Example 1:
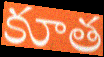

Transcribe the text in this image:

కూత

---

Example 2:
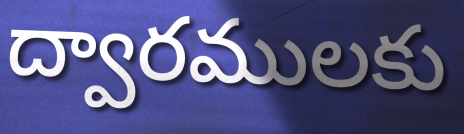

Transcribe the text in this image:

ద్వారములకు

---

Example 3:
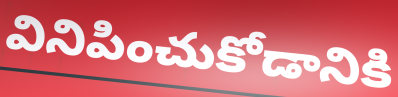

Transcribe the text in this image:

వినిపించుకోడానికి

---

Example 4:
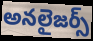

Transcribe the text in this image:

అనలైజర్స్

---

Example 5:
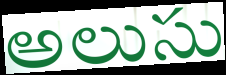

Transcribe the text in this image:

అలుసు